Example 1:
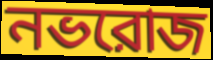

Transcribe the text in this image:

নভরোজ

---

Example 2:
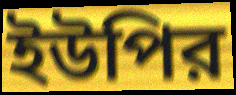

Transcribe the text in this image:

ইউপির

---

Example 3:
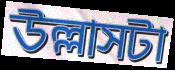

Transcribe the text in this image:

উল্লাসটা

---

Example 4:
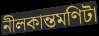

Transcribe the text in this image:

নীলকান্তমণিটা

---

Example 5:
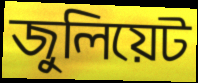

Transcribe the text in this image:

জুলিয়েট